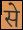
से